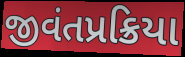
જીવંતપ્રક્રિયા